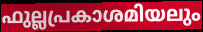
ഫുല്ലപ്രകാശമിയലും